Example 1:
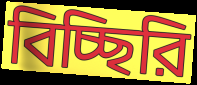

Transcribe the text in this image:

বিচ্ছিরি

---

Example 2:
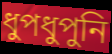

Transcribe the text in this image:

ধুপধুপুনি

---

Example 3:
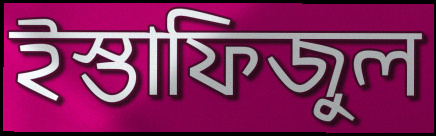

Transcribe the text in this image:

ইস্তাফিজুল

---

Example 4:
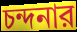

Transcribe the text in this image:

চন্দনার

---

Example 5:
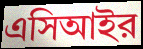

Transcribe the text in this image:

এসিআইর